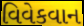
વિવેકવાન